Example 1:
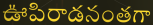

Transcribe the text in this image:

ఊపిరాడనంతగా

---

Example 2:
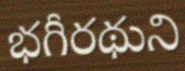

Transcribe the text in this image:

భగీరథుని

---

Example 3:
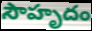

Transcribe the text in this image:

సౌహృదం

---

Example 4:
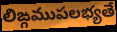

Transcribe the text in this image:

లిఙ్గముపలభ్యతే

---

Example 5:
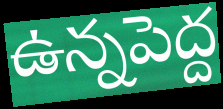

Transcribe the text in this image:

ఉన్నపెద్ద